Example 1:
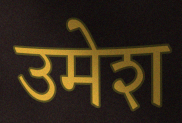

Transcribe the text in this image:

उमेश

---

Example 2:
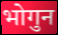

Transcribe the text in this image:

भोगुन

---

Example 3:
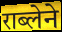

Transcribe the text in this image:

राब्लेने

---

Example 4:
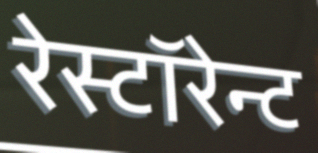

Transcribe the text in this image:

रेस्टॉरेन्ट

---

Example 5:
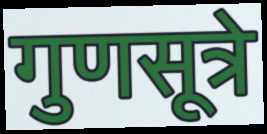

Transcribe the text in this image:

गुणसूत्रे